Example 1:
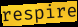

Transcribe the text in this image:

respire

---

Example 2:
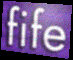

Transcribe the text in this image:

fife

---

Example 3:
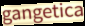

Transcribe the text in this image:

gangetica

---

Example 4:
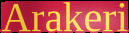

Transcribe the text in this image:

Arakeri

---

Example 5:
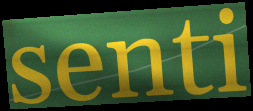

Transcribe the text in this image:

senti